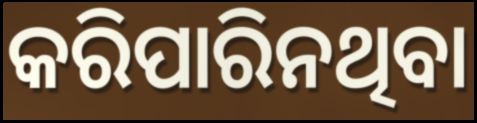
କରିପାରିନଥିବା